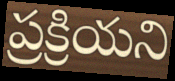
ప్రక్రియని